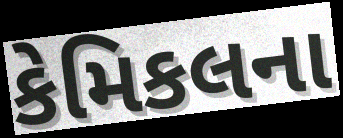
કેમિકલના